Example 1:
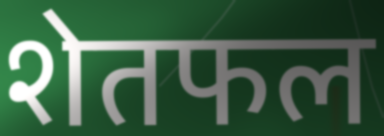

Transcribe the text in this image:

शेतफल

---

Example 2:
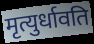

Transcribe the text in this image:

मृत्युर्धावति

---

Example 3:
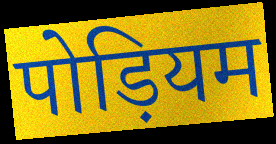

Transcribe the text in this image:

पोड़ियम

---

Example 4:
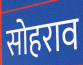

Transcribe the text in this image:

सोहराव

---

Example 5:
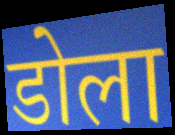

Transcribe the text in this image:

डोला